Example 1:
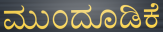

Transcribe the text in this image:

ಮುಂದೂಡಿಕೆ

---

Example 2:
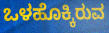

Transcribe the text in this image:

ಒಳಹೊಕ್ಕಿರುವ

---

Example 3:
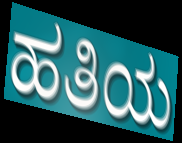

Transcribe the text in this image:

ಹತಿಯ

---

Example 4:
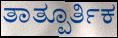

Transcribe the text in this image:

ತಾತ್ಪೂರ್ತಿಕ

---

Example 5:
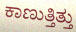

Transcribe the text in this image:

ಕಾಣುತ್ತಿತ್ತು